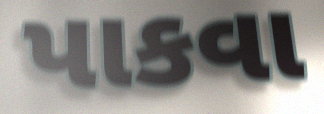
પાકવા